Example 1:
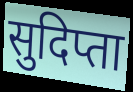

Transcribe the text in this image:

सुदिप्ता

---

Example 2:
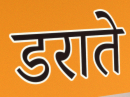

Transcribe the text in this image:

डराते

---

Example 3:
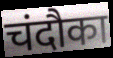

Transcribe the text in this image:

चंदौका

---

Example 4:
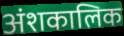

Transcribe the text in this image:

अंशकालिक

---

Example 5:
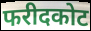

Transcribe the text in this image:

फरीदकोट